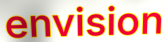
envision